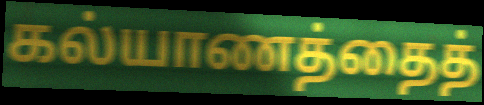
கல்யாணத்தைத்